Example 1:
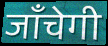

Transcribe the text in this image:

जाँचेगी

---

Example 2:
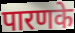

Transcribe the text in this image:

पारणके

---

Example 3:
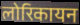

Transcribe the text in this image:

लोरिकायन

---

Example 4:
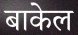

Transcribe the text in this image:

बाकेल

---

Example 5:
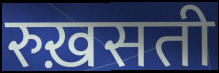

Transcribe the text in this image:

रुख़सती